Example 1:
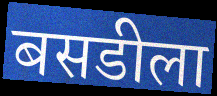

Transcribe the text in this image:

बसडीला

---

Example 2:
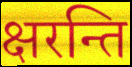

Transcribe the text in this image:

क्षरन्ति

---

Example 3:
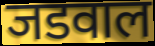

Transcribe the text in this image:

जडवाल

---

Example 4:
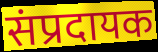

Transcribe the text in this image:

संप्रदायक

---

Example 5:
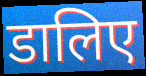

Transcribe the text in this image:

डालिए